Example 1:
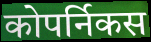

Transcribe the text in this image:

कोपर्निकस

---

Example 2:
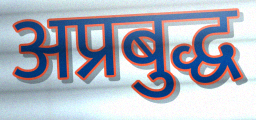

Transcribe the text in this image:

अप्रबुद्ध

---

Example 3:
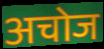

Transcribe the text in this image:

अचोज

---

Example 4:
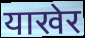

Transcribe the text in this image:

याखेर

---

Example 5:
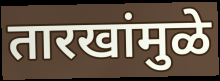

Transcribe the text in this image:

तारखांमुळे